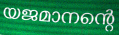
യജമാനന്റെ